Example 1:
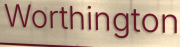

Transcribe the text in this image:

Worthington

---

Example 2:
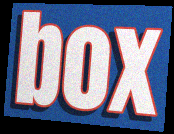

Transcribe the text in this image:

box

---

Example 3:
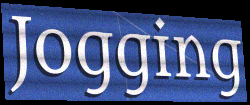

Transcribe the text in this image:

Jogging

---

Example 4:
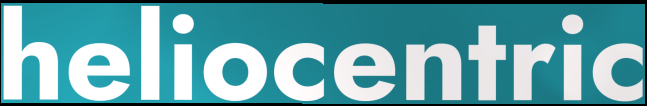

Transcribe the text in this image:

heliocentric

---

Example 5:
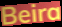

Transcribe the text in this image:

Beira